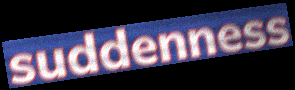
suddenness